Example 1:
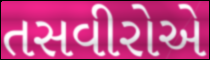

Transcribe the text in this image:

તસવીરોએ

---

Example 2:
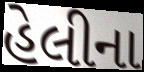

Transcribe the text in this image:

હેલીના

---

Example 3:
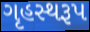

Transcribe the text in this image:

ગૃહસ્થરૂપ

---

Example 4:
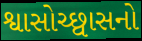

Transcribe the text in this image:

શ્વાસોચ્છ્વાસનો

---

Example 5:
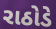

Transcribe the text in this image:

રાઠોડે